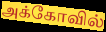
அக்கோவில்